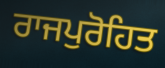
ਰਾਜਪੁਰੋਹਿਤ